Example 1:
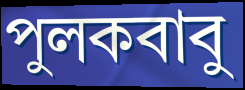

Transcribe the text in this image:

পুলকবাবু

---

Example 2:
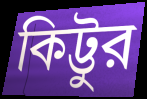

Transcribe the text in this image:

কিট্টুর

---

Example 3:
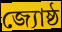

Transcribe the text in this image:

জ্যোষ্ঠ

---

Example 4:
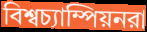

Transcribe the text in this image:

বিশ্বচ্যাম্পিয়নরা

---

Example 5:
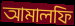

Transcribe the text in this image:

আমালফি